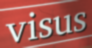
visus